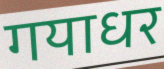
गयाधर